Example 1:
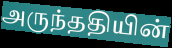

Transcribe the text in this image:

அருந்ததியின்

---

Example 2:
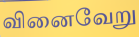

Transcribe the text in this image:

வினைவேறு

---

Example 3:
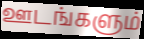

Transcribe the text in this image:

ஊடங்களும்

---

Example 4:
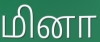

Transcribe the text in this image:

மினா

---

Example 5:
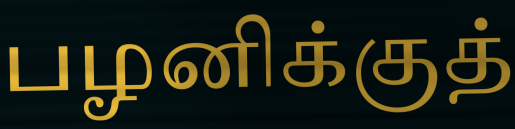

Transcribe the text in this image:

பழனிக்குத்